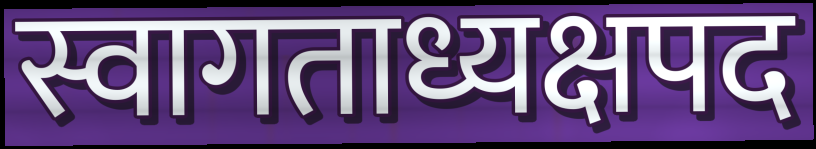
स्वागताध्यक्षपद